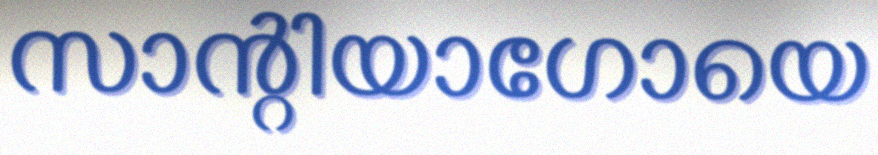
സാന്റിയാഗോയെ